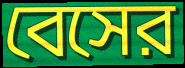
বেসের